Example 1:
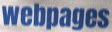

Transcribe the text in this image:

webpages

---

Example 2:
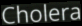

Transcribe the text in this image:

Cholera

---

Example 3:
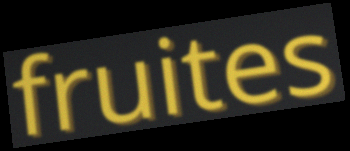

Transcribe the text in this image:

fruites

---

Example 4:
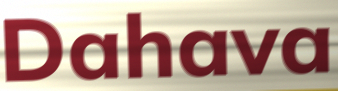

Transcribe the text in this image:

Dahava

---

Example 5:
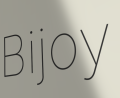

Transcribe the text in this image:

Bijoy